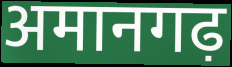
अमानगढ़